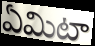
ఏమిటా